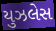
યુઝલેસ